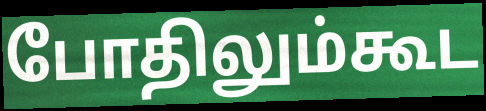
போதிலும்கூட